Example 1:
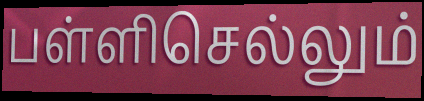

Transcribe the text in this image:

பள்ளிசெல்லும்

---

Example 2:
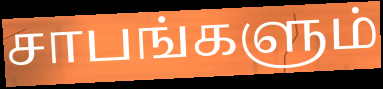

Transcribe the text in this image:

சாபங்களும்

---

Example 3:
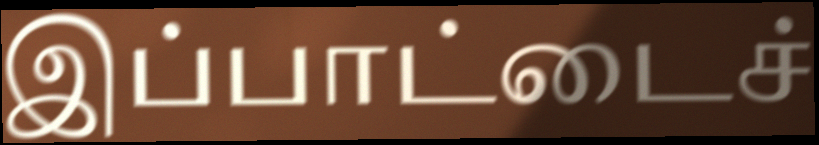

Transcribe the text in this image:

இப்பாட்டைச்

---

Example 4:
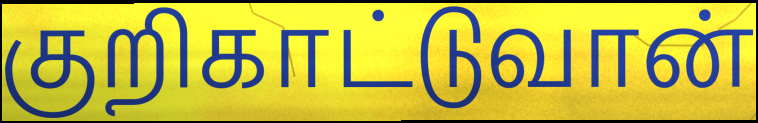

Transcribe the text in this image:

குறிகாட்டுவான்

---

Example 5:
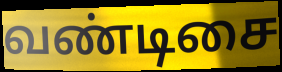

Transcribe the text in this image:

வண்டிசை